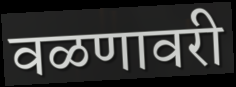
वळणावरी